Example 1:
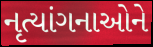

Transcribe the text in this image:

નૃત્યાંગનાઓને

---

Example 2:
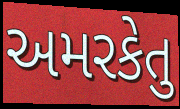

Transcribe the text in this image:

અમરકેતુ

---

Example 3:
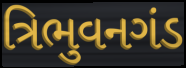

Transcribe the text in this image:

ત્રિભુવનગંડ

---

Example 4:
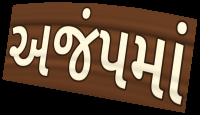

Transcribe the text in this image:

અજંપમાં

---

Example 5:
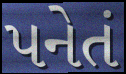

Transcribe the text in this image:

પનેતં